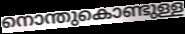
നൊന്തുകൊണ്ടുള്ള